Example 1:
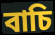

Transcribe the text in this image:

বাচি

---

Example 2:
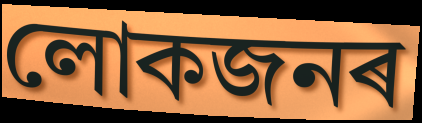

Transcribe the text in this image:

লোকজনৰ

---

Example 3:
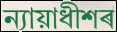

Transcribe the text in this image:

ন্যায়াধীশৰ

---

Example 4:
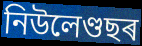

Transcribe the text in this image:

নিউলেণ্ডছৰ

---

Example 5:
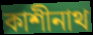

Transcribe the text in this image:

কাশীনাথ